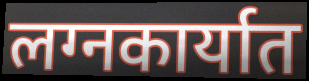
लग्नकार्यात